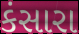
કંસારા